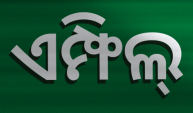
ଏମ୍ଫିଲ୍